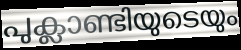
പുക്ലാണ്ടിയുടെയും